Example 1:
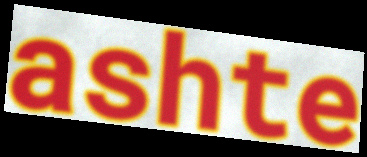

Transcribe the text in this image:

ashte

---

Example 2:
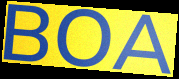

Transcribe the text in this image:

BOA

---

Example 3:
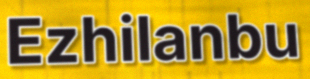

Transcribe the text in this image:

Ezhilanbu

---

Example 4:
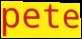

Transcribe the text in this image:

pete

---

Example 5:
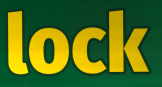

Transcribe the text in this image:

lock